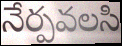
నేర్పవలసి